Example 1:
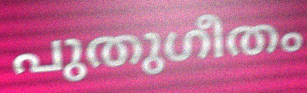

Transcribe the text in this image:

പുതുഗീതം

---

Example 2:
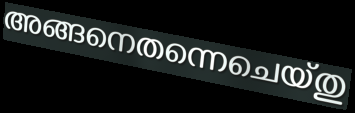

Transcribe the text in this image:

അങ്ങനെതന്നെചെയ്തു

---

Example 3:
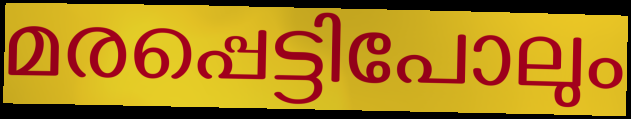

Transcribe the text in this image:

മരപ്പെട്ടിപോലും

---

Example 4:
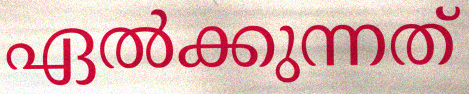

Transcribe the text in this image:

ഏൽക്കുന്നത്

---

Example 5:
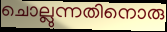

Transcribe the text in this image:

ചൊല്ലുന്നതിനൊരു